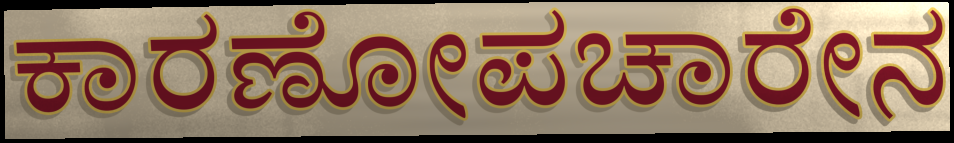
ಕಾರಣೋಪಚಾರೇನ